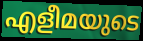
എളീമയുടെ